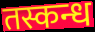
तस्कन्ध